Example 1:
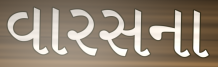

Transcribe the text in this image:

વારસના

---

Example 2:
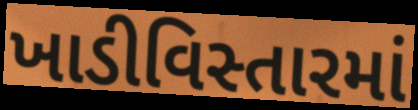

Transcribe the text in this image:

ખાડીવિસ્તારમાં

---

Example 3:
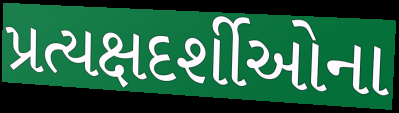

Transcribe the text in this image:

પ્રત્યક્ષદર્શીઓના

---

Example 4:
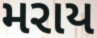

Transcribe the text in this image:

મરાય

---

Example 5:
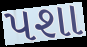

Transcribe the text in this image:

પશા